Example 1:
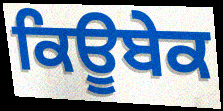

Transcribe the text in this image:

ਕਿਊਬੇਕ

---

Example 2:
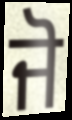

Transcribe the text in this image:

ਜੋ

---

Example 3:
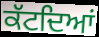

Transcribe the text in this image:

ਕੱਟਦਿਆਂ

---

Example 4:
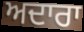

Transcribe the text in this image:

ਅਦਾਰਾ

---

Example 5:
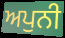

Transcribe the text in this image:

ਅਪੁਨੀ